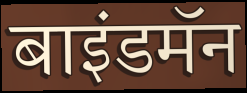
बाइंडमॅन